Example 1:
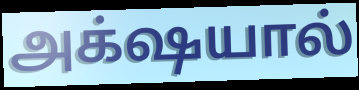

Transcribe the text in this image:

அக்‌ஷயால்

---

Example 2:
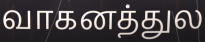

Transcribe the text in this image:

வாகனத்துல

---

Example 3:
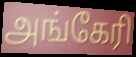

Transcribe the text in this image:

அங்கேரி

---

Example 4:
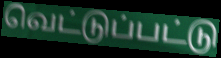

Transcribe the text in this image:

வெட்டுப்பட்டு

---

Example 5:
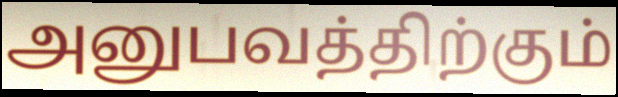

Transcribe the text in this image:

அனுபவத்திற்கும்